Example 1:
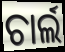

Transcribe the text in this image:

ଚାର୍ଲ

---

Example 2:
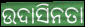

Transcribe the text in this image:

ଉଦାସିନତା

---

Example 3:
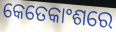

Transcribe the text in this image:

କେତେକାଂଶରେ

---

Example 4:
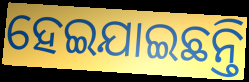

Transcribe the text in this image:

ହେଇଯାଇଛନ୍ତି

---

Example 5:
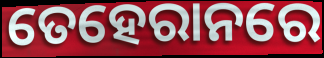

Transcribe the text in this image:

ତେହେରାନରେ